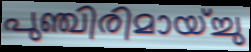
പുഞ്ചിരിമായ്ച്ചു